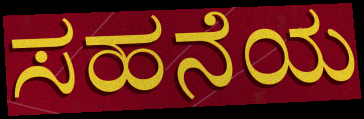
ಸಹನೆಯ